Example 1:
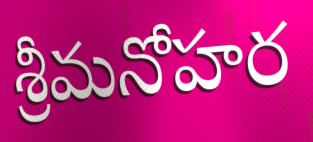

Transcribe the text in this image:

శ్రీమనోహర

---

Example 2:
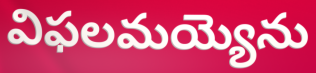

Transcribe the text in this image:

విఫలమయ్యెను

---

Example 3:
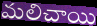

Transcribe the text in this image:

మలిచాయి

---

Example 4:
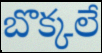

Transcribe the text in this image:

బొక్కలే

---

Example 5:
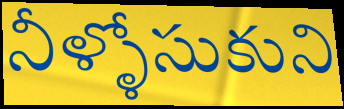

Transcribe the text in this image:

నీళ్ళోసుకుని